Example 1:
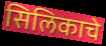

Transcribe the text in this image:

सिलिकाचे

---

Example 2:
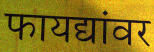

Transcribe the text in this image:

फायद्यांवर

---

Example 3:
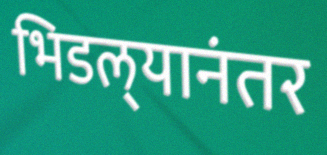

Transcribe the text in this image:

भिडल्यानंतर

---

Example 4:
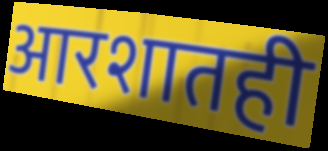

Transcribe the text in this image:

आरशातही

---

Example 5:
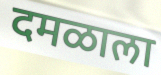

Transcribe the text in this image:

दमळाला